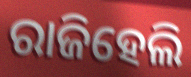
ରାଜିହେଲି